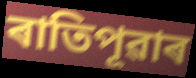
ৰাতিপূৱাৰ